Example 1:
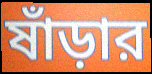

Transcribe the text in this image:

ষাঁড়ার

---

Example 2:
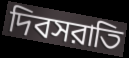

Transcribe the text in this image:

দিবসরাতি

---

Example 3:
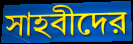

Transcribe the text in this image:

সাহবীদের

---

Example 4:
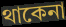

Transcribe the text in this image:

থাকেনা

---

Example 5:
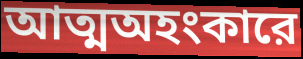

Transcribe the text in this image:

আত্মঅহংকারে